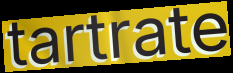
tartrate